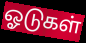
ஓடுகள்